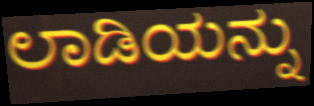
ಲಾಡಿಯನ್ನು